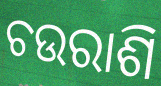
ଚଉରାଶି